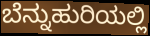
ಬೆನ್ನುಹುರಿಯಲ್ಲಿ